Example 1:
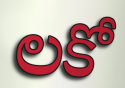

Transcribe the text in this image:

లకో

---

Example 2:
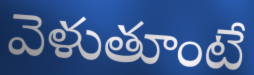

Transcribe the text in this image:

వెళుతూంటే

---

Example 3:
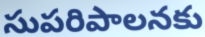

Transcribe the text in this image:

సుపరిపాలనకు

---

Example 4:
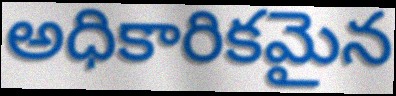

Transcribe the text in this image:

అధికారికమైన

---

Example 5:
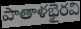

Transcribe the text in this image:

పాతాళభైరవి